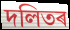
দলিতৰ